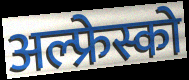
अल्फ्रेस्को